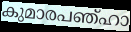
കുമാരപഞ്ഹാ